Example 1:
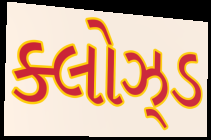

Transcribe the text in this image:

ક્લોઝ્ડ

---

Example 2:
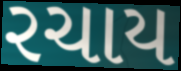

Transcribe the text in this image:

રચાય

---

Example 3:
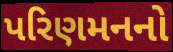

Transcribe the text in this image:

પરિણમનનો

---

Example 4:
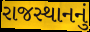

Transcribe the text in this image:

રાજસ્થાનનું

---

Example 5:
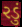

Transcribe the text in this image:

રડું